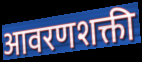
आवरणशक्ती